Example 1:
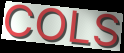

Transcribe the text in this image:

COLS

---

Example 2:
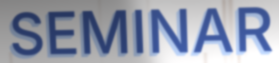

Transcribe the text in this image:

SEMINAR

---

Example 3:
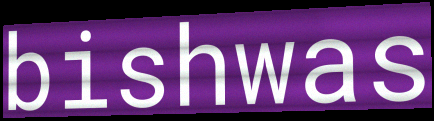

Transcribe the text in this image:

bishwas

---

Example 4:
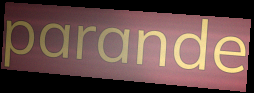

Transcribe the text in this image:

parande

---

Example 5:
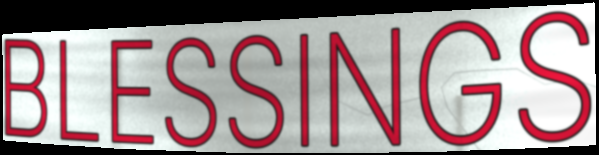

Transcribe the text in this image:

BLESSINGS